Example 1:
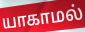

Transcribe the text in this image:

யாகாமல்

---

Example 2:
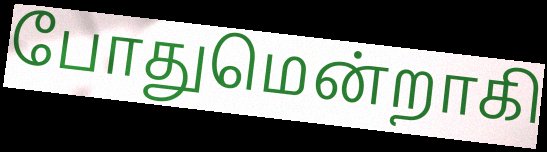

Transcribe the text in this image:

போதுமென்றாகி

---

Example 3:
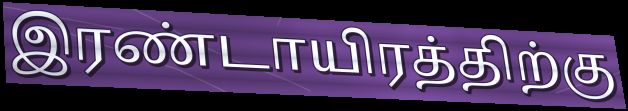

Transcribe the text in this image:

இரண்டாயிரத்திற்கு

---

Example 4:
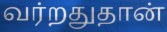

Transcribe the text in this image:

வர்றதுதான்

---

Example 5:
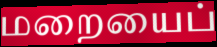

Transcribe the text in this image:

மறையைப்